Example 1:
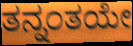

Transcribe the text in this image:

ತನ್ನಂತಯೇ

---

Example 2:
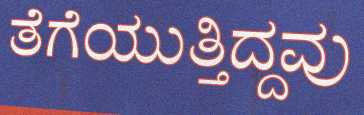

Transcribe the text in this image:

ತೆಗೆಯುತ್ತಿದ್ದವು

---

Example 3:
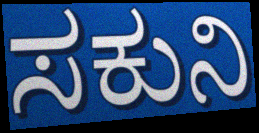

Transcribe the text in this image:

ಸಕುನಿ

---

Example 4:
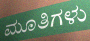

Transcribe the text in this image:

ಮೂತಿಗಳು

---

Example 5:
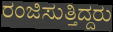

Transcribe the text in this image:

ರಂಜಿಸುತ್ತಿದ್ದರು